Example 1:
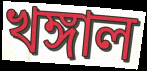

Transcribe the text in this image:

খঙ্গাল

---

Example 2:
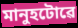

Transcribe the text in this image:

মানুহটোৱে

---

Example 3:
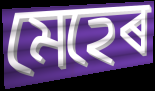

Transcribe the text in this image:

মেহেৰ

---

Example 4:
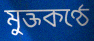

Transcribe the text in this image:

মুক্তকণ্ঠে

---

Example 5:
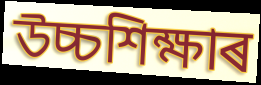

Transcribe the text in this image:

উচ্চশিক্ষাৰ